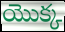
యొక్క